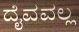
ದೈವವಲ್ಲ